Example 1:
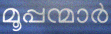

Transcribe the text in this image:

മൂപ്പന്മാർ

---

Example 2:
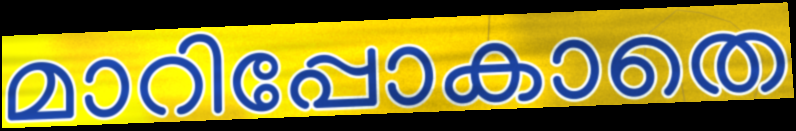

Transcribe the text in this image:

മാറിപ്പോകാതെ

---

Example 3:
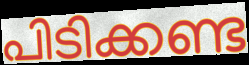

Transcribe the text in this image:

പിടിക്കണ്ട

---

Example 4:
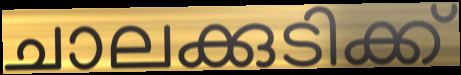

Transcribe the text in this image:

ചാലക്കുടിക്ക്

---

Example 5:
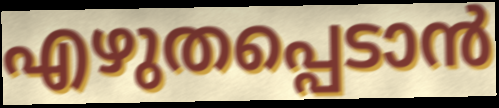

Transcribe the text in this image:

എഴുതപ്പെടാൻ